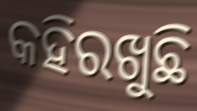
କହିରଖୁଛି